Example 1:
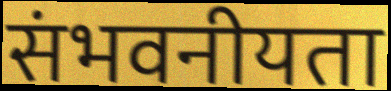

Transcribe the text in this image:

संभवनीयता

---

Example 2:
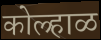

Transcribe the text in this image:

कोल्हाळ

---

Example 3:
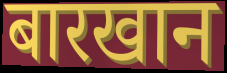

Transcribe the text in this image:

बारखान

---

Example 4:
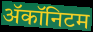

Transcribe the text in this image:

ॲकॉनिटम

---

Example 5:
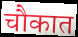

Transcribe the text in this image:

चौकात